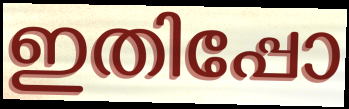
ഇതിപ്പോ